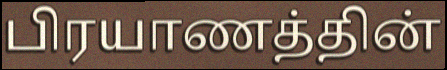
பிரயாணத்தின்